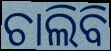
ଚାଲିବି